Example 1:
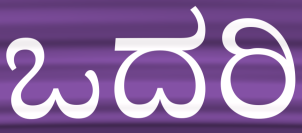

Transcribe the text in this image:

ಒದರಿ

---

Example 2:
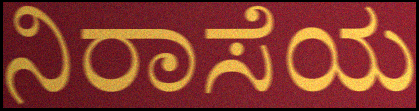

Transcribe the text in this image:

ನಿರಾಸೆಯ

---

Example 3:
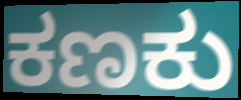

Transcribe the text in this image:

ಕಣಕು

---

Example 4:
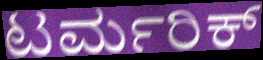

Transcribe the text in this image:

ಟರ್ಮರಿಕ್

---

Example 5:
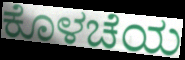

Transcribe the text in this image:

ಕೊಳಚೆಯ